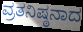
ವ್ರತನಿಷ್ಠನಾದ